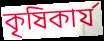
কৃষিকাৰ্য